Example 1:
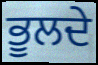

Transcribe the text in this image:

ਭੂਲਦੇ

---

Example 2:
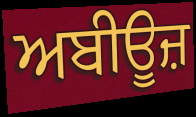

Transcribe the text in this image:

ਅਬੀਊਜ਼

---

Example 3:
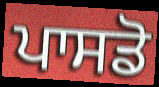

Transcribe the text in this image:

ਪਾਸਡੋ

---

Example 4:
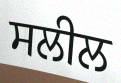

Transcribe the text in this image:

ਸਲੀਲ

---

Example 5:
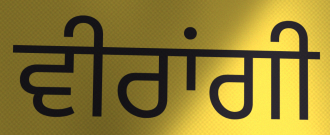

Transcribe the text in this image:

ਵੀਰਾਂਗੀ